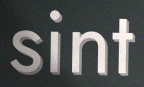
sint